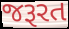
જરૂરત